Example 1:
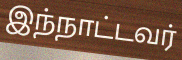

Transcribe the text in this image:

இந்நாட்டவர்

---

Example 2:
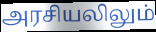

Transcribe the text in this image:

அரசியலிலும்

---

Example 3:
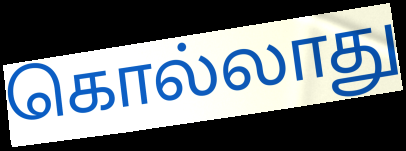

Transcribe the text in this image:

கொல்லாது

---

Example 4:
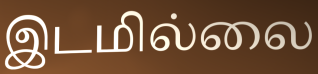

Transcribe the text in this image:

இடமில்லை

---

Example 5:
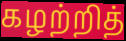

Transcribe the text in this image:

கழற்றித்